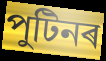
পুটিনৰ